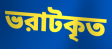
ভরাটকৃত